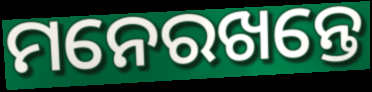
ମନେରଖନ୍ତେ